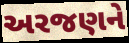
અરજણને